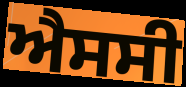
ਐਸਸੀ